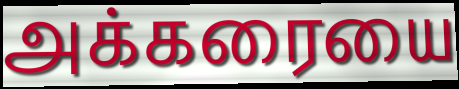
அக்கரையை